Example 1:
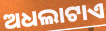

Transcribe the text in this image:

ଅଧଲାଟାଏ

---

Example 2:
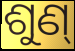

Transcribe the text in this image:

ଶୁଣ୍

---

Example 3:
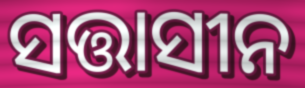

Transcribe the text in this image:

ସତ୍ତାସୀନ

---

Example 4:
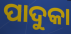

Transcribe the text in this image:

ପାଦୁକା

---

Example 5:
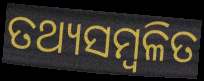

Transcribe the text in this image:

ତଥ୍ୟସମ୍ବଳିତ